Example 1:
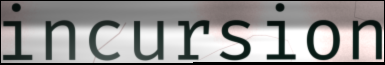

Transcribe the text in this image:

incursion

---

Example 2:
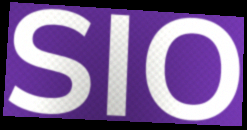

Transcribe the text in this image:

SIO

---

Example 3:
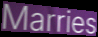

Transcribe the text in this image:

Marries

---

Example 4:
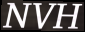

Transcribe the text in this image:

NVH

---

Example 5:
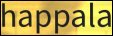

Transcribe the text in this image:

happala